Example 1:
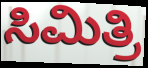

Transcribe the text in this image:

ಸಿಮಿತ್ರಿ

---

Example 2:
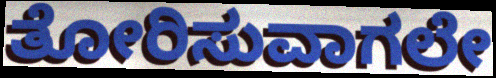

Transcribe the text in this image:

ತೋರಿಸುವಾಗಲೇ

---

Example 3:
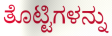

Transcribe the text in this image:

ತೊಟ್ಟಿಗಳನ್ನು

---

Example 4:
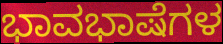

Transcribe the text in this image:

ಭಾವಭಾಷೆಗಳ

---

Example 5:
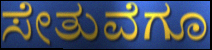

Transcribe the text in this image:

ಸೇತುವೆಗೂ